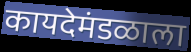
कायदेमंडळाला